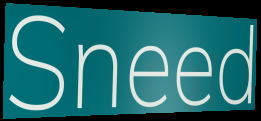
Sneed